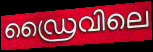
ഡ്രൈവിലെ